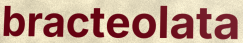
bracteolata